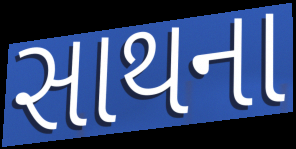
સાથના